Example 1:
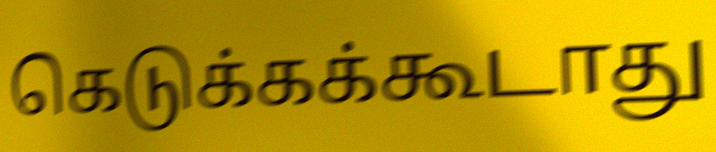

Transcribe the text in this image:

கெடுக்கக்கூடாது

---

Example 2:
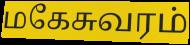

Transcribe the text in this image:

மகேசுவரம்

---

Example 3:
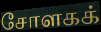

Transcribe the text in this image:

சோளகக்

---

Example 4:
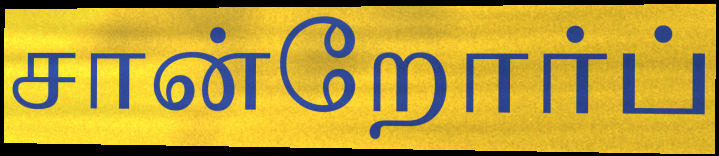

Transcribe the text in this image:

சான்றோர்ப்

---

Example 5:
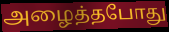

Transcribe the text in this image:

அழைத்தபோது